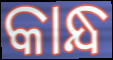
କାନ୍ଧ